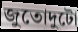
জুতোদুটো